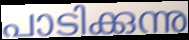
പാടിക്കുന്നു